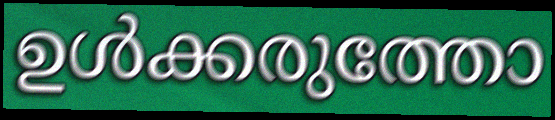
ഉൾക്കരുത്തോ